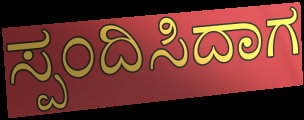
ಸ್ಪಂದಿಸಿದಾಗ